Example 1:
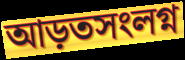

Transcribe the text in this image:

আড়তসংলগ্ন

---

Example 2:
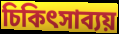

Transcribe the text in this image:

চিকিৎসাব্যয়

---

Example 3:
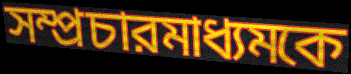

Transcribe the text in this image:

সম্প্রচারমাধ্যমকে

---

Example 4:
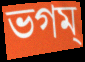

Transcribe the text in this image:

ভগম্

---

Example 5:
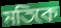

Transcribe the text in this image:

মতিকে